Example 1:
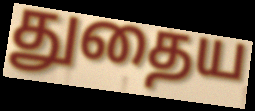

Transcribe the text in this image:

துதைய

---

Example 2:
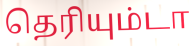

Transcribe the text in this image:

தெரியும்டா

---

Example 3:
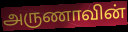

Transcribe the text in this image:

அருணாவின்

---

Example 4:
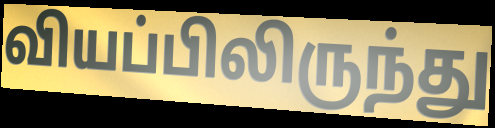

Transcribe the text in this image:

வியப்பிலிருந்து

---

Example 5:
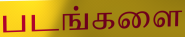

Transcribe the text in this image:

படங்களை